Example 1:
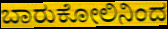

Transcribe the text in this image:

ಬಾರುಕೋಲಿನಿಂದ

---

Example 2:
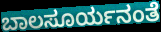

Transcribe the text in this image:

ಬಾಲಸೂರ್ಯನಂತೆ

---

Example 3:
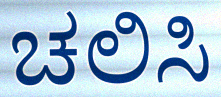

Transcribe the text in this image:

ಚಲಿಸಿ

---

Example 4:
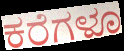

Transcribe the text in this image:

ಕರೆಗಳೂ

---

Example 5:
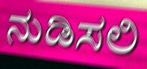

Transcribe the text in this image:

ನುಡಿಸಲಿ